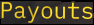
Payouts